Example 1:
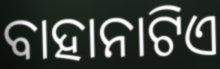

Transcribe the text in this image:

ବାହାନାଟିଏ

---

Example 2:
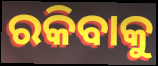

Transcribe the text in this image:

ରକିବାକୁ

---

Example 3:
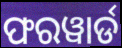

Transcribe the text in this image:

ଫରୱାର୍ଡ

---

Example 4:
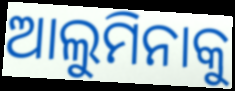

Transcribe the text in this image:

ଆଲୁମିନାକୁ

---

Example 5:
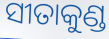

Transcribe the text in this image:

ସୀତାକୁଣ୍ଡ